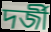
দৰ্জী